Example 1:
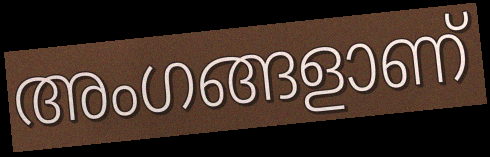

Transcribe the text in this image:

അംഗങ്ങളാണ്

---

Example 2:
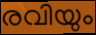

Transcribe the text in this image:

രവിയും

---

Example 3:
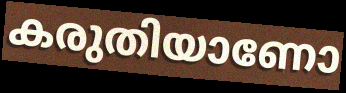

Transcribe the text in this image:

കരുതിയാണോ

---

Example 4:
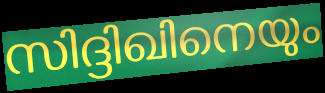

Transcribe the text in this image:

സിദ്ദിഖിനെയും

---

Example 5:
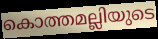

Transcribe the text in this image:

കൊത്തമല്ലിയുടെ